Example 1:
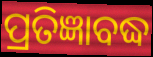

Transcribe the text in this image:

ପ୍ରତିଜ୍ଞାବଦ୍ଧ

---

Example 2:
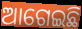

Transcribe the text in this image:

ଆଗେଇଛି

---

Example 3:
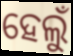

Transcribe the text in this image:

ହେଲୁଁ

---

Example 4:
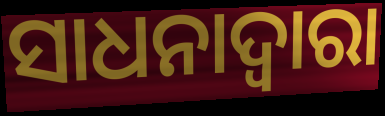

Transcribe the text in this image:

ସାଧନାଦ୍ଵାରା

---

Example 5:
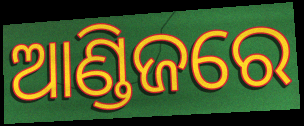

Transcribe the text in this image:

ଆଣ୍ଡିଜରେ